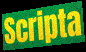
Scripta